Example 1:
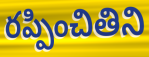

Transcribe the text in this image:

రప్పించితిని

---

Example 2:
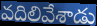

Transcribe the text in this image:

వదిలివేశాడు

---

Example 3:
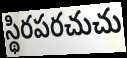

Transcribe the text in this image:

స్థిరపరచుచు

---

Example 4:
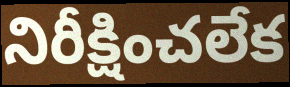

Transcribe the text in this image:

నిరీక్షించలేక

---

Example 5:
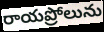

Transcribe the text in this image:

రాయప్రోలును